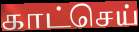
காட்செய்